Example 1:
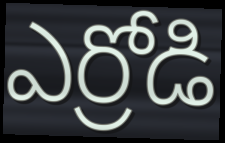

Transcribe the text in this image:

ఎర్రోడి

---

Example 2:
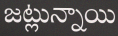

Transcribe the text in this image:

జట్లున్నాయి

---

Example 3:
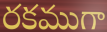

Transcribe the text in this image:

రకముగా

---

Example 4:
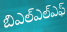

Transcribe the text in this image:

బిఎల్ఎల్ఎఫ్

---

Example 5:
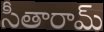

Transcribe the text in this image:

సీతారామ్